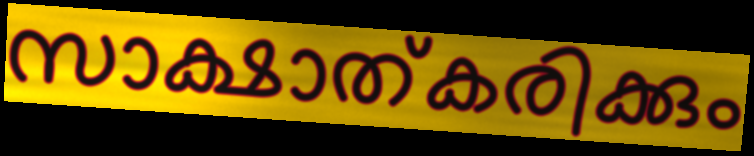
സാക്ഷാത്കരിക്കും